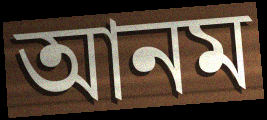
আনম